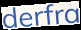
derfra